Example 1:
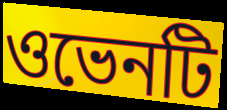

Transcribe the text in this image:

ওভেনটি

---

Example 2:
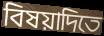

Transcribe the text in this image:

বিষয়াদিতে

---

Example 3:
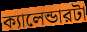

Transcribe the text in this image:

ক্যালেন্ডারটা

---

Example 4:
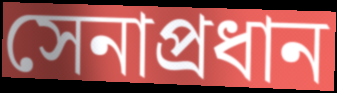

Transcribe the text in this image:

সেনাপ্রধান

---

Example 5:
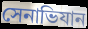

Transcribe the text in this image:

সেনাভিযান